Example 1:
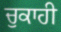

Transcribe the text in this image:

ਚੁਕਾਹੀ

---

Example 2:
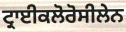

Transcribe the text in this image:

ਟ੍ਰਾਈਕਲੋਰੋਸੀਲੇਨ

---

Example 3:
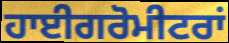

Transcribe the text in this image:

ਹਾਈਗਰੋਮੀਟਰਾਂ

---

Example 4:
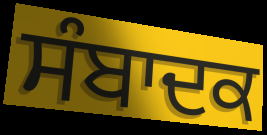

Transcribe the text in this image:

ਸੰਬਾਦਕ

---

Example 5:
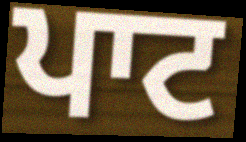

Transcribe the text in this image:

ਪਾਟ